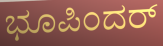
ಭೂಪಿಂದರ್